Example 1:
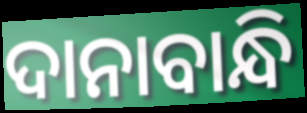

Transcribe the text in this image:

ଦାନାବାନ୍ଧି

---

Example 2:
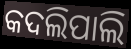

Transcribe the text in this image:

କଦଲିପାଲି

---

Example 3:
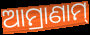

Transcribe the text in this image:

ଆମ୍ରାଣାମ୍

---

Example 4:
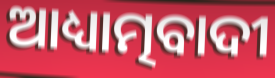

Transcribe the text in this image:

ଆଧ୍ୟାତ୍ମବାଦୀ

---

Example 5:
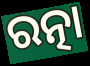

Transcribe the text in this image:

ରତ୍ନା